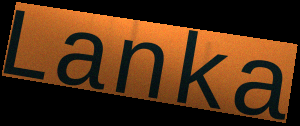
Lanka